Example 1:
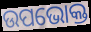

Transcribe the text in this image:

ଉପଭୋକ୍ତ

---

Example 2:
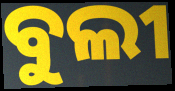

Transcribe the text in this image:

ବୁଲୀ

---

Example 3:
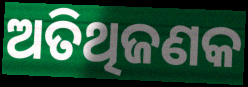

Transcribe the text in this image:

ଅତିଥିଜଣକ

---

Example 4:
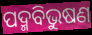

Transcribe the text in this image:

ପଦ୍ମବିଭୁଷଣ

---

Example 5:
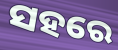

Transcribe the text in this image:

ସହରେ